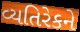
વ્યતિરેકને